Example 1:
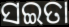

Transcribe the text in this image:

ସଇତା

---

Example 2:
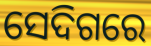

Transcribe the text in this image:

ସେଦିଗରେ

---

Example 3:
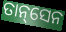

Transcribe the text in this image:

ତାନ୍‌ସେନ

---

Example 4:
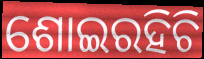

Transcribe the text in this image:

ଶୋଇରହିଚି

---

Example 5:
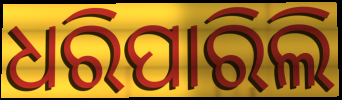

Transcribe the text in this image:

ଧରିପାରିଲି